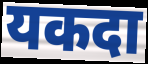
यकदा